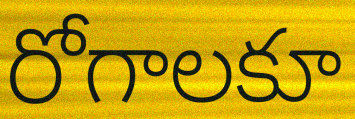
రోగాలకూ